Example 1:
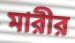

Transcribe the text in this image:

মারীর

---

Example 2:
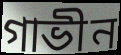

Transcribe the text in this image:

গাভীন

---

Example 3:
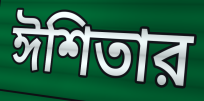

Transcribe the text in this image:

ঈশিতার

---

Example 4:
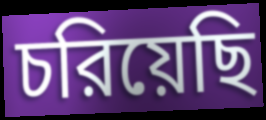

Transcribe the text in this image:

চরিয়েছি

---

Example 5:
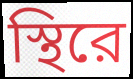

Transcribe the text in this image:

স্থিরে